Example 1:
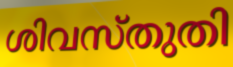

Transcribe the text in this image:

ശിവസ്തുതി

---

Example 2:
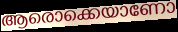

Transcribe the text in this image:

ആരൊക്കെയാണോ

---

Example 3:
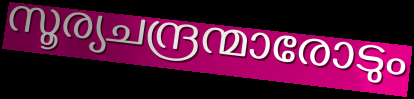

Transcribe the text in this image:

സൂര്യചന്ദ്രന്മാരോടും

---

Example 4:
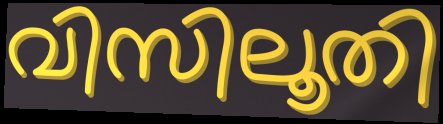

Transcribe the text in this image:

വിസിലൂതി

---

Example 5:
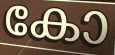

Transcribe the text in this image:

കോ